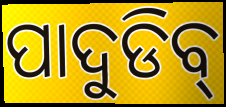
ପାଦୁଡିବ୍